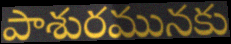
పాశురమునకు